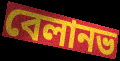
বেলানভ